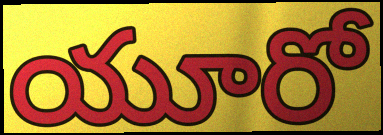
యూరో